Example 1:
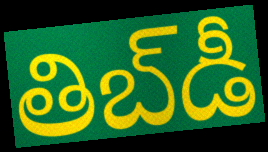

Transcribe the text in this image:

తిబ్‌డీ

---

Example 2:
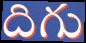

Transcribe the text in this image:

దిగు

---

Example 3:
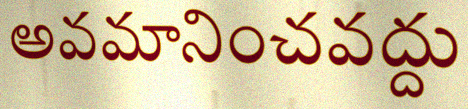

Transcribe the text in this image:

అవమానించవద్దు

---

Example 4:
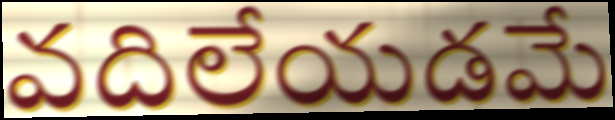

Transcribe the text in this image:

వదిలేయడమే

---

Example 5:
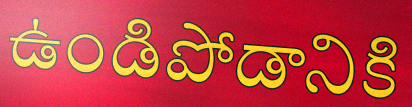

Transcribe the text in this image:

ఉండిపోడానికి